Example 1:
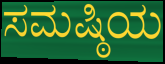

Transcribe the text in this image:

ಸಮಷ್ಠಿಯ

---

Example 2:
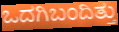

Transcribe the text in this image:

ಒದಗಿಬಂದಿತ್ತು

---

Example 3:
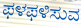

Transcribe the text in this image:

ಫಳಫಳಿಸುವ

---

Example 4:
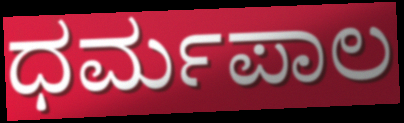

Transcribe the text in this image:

ಧರ್ಮಪಾಲ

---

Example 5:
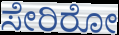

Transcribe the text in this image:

ಸೇರಿರೋ